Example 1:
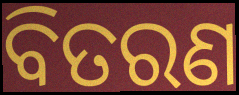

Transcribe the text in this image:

ବିତରଣ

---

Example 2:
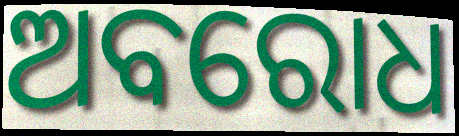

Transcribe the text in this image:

ଅବରୋଧ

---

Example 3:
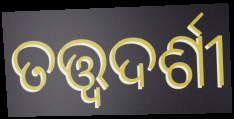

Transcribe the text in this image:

ତତ୍ତ୍ଵଦର୍ଶୀ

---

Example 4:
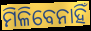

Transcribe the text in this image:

ମିଳିବେନାହିଁ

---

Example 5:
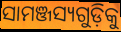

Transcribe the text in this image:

ସାମଞ୍ଜସ୍ୟଗୁଡ଼ିକୁ